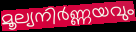
മൂല്യനിർണ്ണയവും